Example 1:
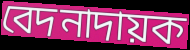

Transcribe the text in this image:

বেদনাদায়ক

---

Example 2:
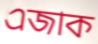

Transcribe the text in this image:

এজাক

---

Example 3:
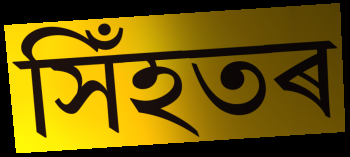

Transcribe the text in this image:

সিঁহতৰ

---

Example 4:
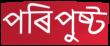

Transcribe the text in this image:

পৰিপুষ্ট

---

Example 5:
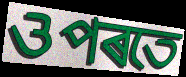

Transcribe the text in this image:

ওপৰতে